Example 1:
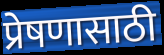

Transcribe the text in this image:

प्रेषणासाठी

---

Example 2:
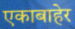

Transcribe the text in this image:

एकाबाहेर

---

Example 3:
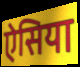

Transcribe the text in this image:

ऐसिया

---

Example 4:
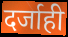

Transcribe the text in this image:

दर्जाही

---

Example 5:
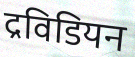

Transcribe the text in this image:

द्रविडियन